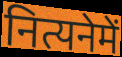
नित्यनेमें